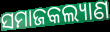
ସମାଜକଲ୍ୟାଣ